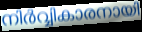
നിർവ്വികാരനായി